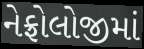
નેફ્રોલોજીમાં